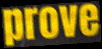
prove